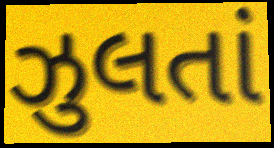
ઝુલતાં